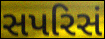
સપરિસં